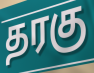
தரகு